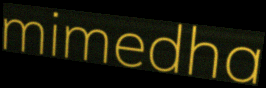
mimedha